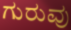
ಗುರುವು